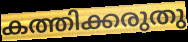
കത്തിക്കരുതു